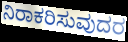
ನಿರಾಕರಿಸುವುದರ